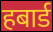
हबार्ड